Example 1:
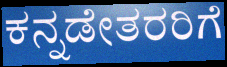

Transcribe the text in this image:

ಕನ್ನಡೇತರರಿಗೆ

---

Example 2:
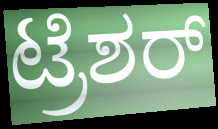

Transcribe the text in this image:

ಟ್ರೆಶರ್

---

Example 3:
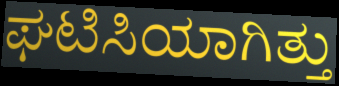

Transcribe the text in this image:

ಘಟಿಸಿಯಾಗಿತ್ತು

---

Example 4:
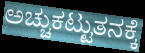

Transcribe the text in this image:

ಅಚ್ಚುಕಟ್ಟುತನಕ್ಕೆ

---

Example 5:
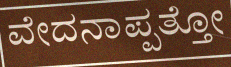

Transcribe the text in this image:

ವೇದನಾಪ್ಪತ್ತೋ